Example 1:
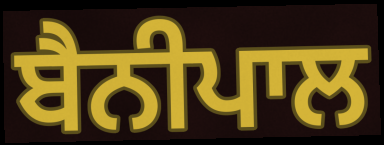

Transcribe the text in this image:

ਬੈਨੀਪਾਲ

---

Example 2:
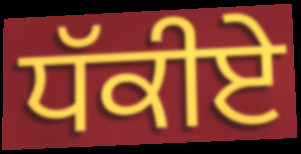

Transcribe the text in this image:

ਧੱਕੀਏ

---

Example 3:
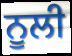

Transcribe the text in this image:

ਨੂਲੀ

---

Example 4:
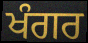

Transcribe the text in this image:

ਖੰਗਰ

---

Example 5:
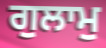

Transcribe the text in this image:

ਗੁਲਾਮੁ